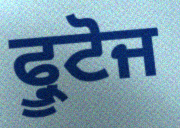
ਫ੍ਰੂਟੋਜ